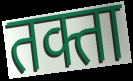
तक्ता